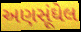
અણસૂંઘેલ